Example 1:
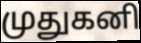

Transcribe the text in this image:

முதுகனி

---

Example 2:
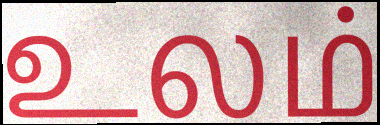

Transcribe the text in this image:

உலம்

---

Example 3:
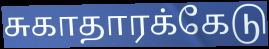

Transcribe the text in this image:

சுகாதாரக்கேடு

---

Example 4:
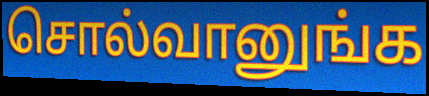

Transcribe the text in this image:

சொல்வானுங்க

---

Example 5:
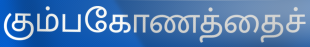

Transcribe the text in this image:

கும்பகோணத்தைச்